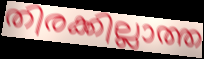
തിരക്കില്ലാത്ത